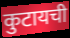
कुटायची